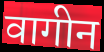
वागीन